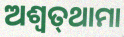
ଅଶ୍ବତ୍‌ଥାମା